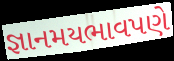
જ્ઞાનમયભાવપણે